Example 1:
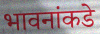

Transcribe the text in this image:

भावनांकडे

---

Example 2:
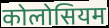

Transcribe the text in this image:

कोलोसियम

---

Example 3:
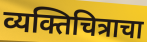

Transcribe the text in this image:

व्यक्तिचित्राचा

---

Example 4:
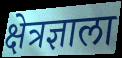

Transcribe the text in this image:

क्षेत्रज्ञाला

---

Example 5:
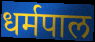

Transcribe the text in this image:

धर्मपाल